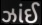
ઝાંઈ